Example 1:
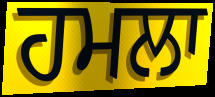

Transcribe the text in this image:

ਹਮਲਾ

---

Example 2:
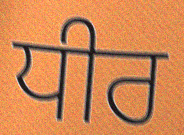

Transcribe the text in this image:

ਧੀਰ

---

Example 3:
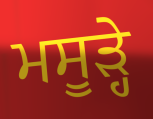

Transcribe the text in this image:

ਮਸੂੜ੍ਹੇ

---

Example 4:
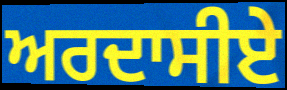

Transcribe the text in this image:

ਅਰਦਾਸੀਏ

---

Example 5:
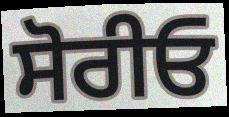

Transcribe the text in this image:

ਸੋਰੀਓ